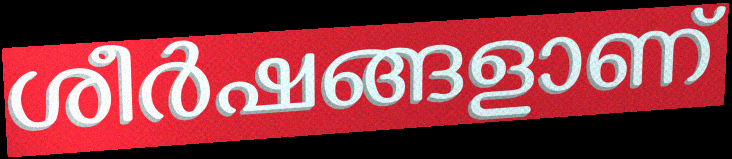
ശീർഷങ്ങളാണ്